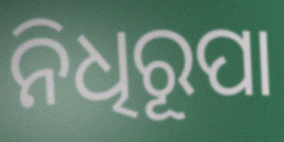
ନିଧିରୂପା